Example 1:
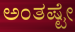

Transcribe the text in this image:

ಅಂತಷ್ಟೇ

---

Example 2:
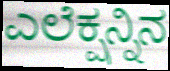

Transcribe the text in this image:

ಎಲೆಕ್ಷನ್ನಿನ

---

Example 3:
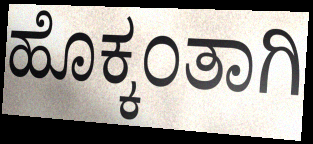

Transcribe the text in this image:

ಹೊಕ್ಕಂತಾಗಿ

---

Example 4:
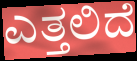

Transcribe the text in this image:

ಎತ್ತಲಿದೆ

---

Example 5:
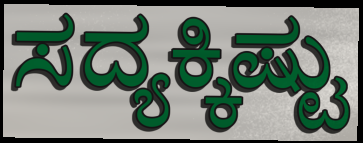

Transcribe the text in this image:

ಸದ್ಯಕ್ಕಿಷ್ಟು